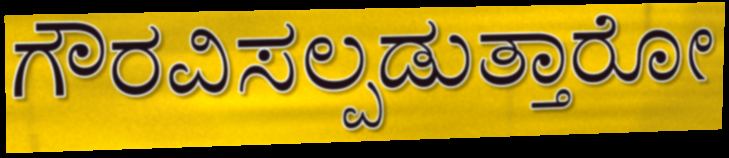
ಗೌರವಿಸಲ್ಪಡುತ್ತಾರೋ